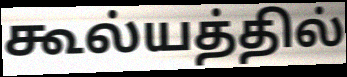
கூல்யத்தில்